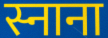
स्नाना